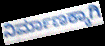
ನಿರ್ಮಾಣಕ್ಕಾಗಿ